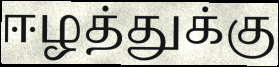
ஈழத்துக்கு